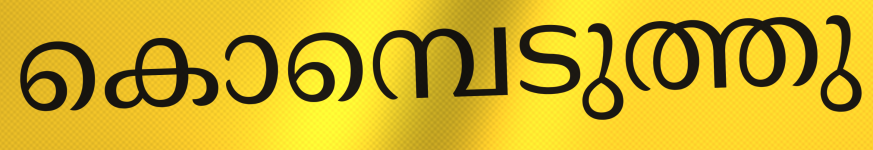
കൊമ്പെടുത്തു